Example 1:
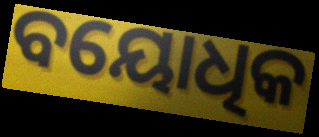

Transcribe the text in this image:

ବୟୋଧିକ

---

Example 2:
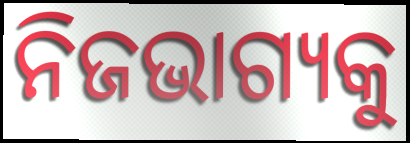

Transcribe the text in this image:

ନିଜଭାଗ୍ୟକୁ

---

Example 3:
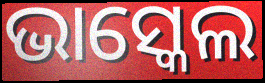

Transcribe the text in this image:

ଭାସ୍କେଲ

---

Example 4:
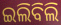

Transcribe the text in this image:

ଇଲିବିଲି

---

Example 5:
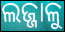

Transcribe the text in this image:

ଲଜ୍ଜାଳୁ